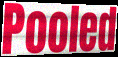
Pooled